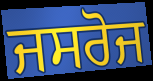
ਜਸਰੋਜ